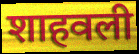
शाहवली